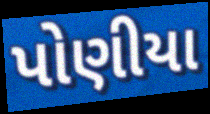
પોણીયા